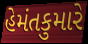
હેમંતકુમારે